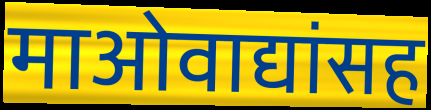
माओवाद्यांसह